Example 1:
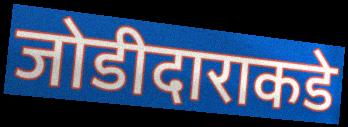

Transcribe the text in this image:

जोडीदाराकडे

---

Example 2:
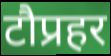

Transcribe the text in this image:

टौप्रहर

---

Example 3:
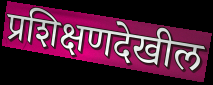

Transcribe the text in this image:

प्रशिक्षणदेखील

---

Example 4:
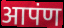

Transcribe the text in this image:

आपंण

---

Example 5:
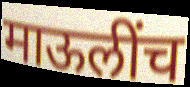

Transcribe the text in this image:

माऊलींच